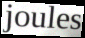
joules